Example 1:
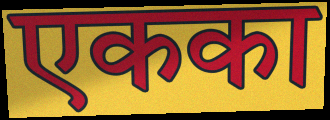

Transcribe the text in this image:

एकका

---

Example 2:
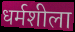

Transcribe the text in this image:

धर्मशीला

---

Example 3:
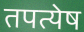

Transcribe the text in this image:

तपत्येष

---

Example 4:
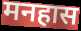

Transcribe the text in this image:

मनहास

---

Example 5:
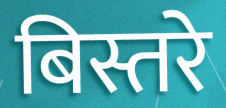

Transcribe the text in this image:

बिस्तरे